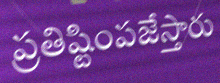
ప్రతిష్టింపజేస్తారు